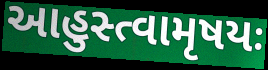
આહુસ્ત્વામૃષયઃ